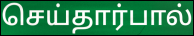
செய்தார்பால்